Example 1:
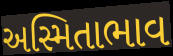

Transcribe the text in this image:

અસ્મિતાભાવ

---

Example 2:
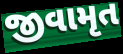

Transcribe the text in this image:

જીવામૃત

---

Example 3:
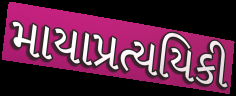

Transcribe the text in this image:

માયાપ્રત્યયિકી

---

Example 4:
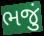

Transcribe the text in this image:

ભજું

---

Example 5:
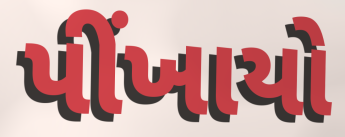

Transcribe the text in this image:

પીંખાયો